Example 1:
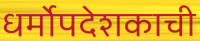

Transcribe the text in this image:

धर्मोपदेशकाची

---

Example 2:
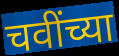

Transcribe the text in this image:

चवींच्या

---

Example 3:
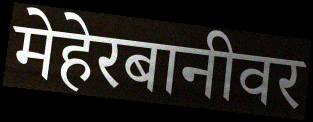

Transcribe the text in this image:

मेहेरबानीवर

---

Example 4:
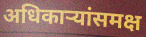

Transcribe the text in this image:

अधिकाऱ्यांसमक्ष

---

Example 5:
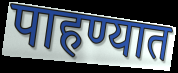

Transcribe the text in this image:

पाहण्यात